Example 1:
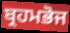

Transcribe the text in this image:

ਬ੍ਰਹਮਭੋਜ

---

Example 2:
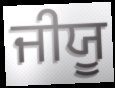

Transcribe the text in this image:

ਜੀਯੂ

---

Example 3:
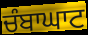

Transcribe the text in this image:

ਚੰਬਾਘਾਟ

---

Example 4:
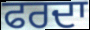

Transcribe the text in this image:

ਫਰਦਾ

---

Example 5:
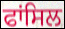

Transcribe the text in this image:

ਫਾਂਸਿਲ